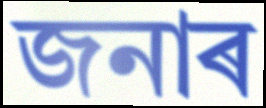
জনাৰ